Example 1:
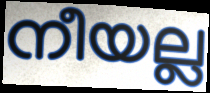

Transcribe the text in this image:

നീയല്ല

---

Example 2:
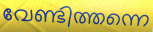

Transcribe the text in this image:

വേണ്ടിത്തന്നെ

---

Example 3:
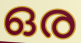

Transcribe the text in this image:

ഒര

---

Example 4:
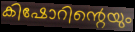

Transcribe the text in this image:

കിഷോറിന്റെയും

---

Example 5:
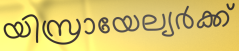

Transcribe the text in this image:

യിസ്രായേല്യർക്ക്